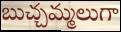
బుచ్చమ్మలుగా